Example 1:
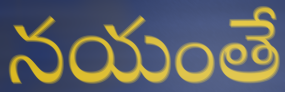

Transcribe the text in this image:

నయంతే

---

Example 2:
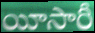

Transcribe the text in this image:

యీసారీ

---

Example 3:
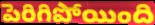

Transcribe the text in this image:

పెరిగిపోయింది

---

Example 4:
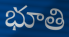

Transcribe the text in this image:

భూతి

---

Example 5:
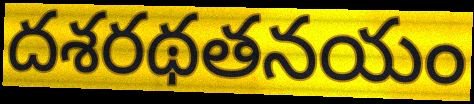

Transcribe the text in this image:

దశరథతనయం